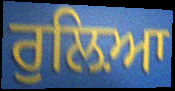
ਰੁਲ਼ਿਆ